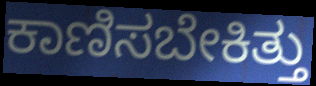
ಕಾಣಿಸಬೇಕಿತ್ತು